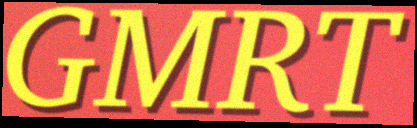
GMRT